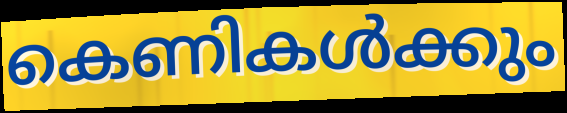
കെണികൾക്കും